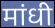
मांधी